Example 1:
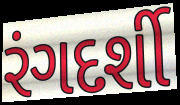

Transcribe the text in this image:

રંગદર્શી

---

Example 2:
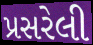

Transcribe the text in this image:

પ્રસરેલી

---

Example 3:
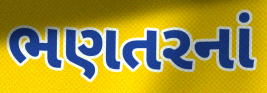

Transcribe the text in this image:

ભણતરનાં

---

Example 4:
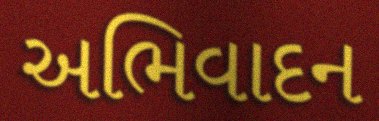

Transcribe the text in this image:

અભિવાદન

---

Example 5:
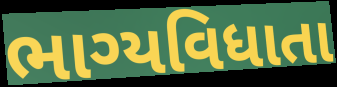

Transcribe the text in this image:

ભાગ્યવિધાતા